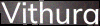
Vithura